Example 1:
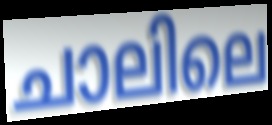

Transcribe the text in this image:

ചാലിലെ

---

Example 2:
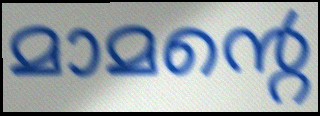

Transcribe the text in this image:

മാമന്റെ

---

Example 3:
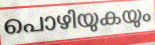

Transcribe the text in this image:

പൊഴിയുകയും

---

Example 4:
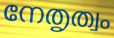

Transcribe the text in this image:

നേതൃത്വം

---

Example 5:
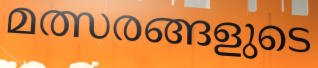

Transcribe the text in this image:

മത്സരങ്ങളുടെ